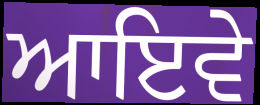
ਆਇਵੇ